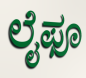
ಲೈಫೂ